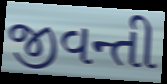
જીવન્તી